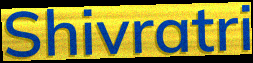
Shivratri